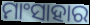
ମାଂସାହାର